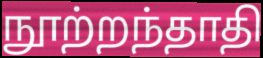
நூற்றந்தாதி